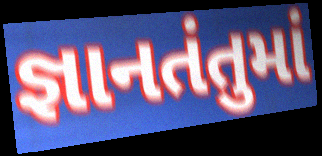
જ્ઞાનતંતુમાં